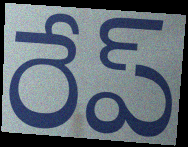
రేప్